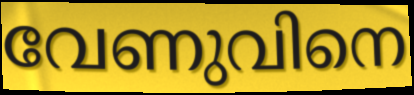
വേണുവിനെ